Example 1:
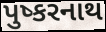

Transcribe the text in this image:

પુષ્કરનાથ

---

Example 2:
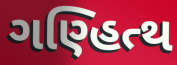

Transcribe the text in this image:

ગણ્હિત્થ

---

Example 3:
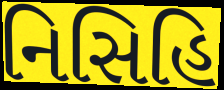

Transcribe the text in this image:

નિસિહિ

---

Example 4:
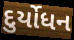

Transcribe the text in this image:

દુર્યોધન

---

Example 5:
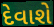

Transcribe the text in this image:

દેવાશે